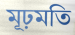
মূঢ়মতি